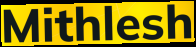
Mithlesh